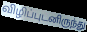
விழிப்புடனிருந்து